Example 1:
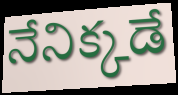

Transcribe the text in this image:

నేనిక్కడే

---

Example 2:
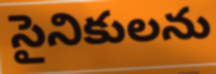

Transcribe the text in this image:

సైనికులను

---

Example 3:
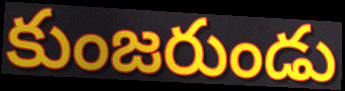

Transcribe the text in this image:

కుంజరుండు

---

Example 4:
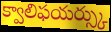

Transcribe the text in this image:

క్వాలిఫయర్స్కు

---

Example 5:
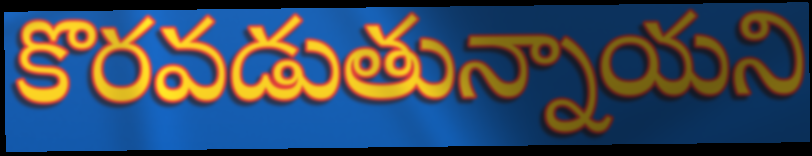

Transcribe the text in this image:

కొరవడుతున్నాయని